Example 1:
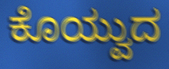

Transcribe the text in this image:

ಕೊಯ್ವುದ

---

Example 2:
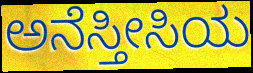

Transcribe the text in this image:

ಅನೆಸ್ತೀಸಿಯ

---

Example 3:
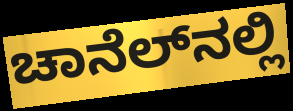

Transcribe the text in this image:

ಚಾನೆಲ್‌ನಲ್ಲಿ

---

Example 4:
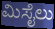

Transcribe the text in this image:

ಮಿಸೈಲು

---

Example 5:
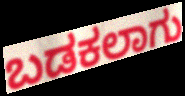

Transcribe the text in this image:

ಬಡಕಲಾಗು